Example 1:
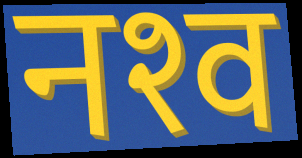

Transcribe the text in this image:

नश्व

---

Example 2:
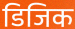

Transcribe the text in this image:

डिजिक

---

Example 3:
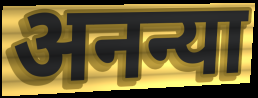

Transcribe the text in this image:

अनन्या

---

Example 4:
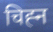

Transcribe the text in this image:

चिह्‍न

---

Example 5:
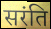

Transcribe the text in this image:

सरंति